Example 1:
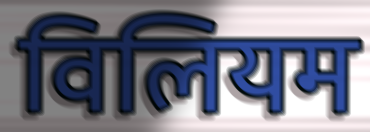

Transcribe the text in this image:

विलियम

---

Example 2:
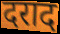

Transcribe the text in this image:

दराद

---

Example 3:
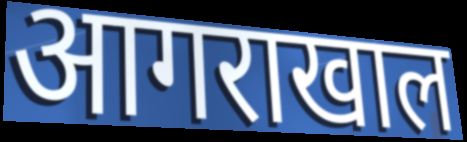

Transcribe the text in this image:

आगराखाल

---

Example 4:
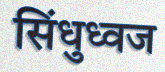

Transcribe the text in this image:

सिंधुध्वज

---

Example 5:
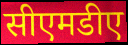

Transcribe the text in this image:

सीएमडीए